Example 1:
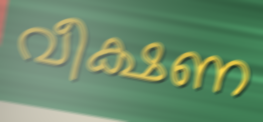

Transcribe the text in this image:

വീക്ഷണ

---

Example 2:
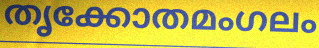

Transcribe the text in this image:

തൃക്കോതമംഗലം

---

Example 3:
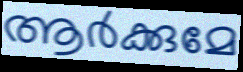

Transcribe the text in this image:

ആർക്കുമേ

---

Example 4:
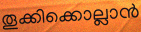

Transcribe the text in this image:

തൂക്കിക്കൊല്ലാൻ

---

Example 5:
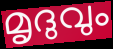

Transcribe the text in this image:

മൃദുവും